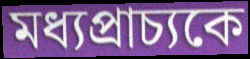
মধ্যপ্রাচ্যকে